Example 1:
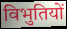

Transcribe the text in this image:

विभुतियों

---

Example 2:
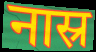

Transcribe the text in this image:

नास्र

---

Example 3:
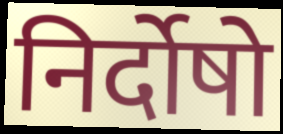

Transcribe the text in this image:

निर्दोषो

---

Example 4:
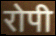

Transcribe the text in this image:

रोपी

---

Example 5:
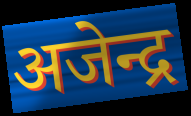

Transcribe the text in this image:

अजेन्द्र